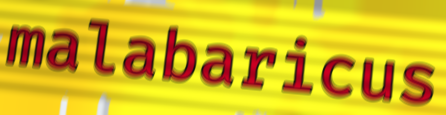
malabaricus